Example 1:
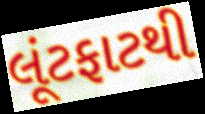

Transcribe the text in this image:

લૂંટફાટથી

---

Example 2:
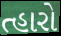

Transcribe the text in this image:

ત્હારો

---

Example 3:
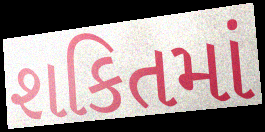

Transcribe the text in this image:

શકિતમાં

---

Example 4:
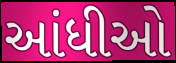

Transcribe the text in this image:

આંધીઓ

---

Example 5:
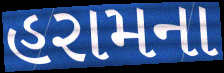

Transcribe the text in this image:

હરામના